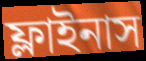
ফ্লাইনাস